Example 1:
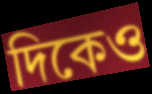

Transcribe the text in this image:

দিকেও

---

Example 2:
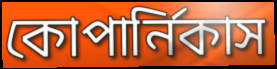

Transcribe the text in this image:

কোপার্নিকাস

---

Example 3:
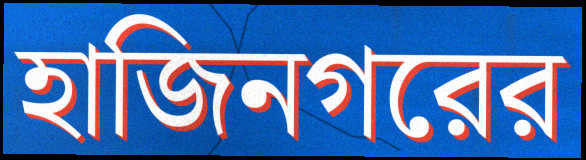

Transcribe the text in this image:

হাজিনগরের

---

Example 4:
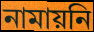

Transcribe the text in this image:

নামায়নি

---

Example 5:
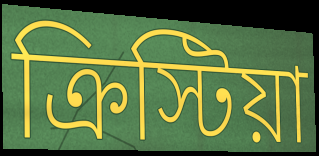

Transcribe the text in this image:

ক্রিস্টিয়া